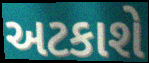
અટકાશે